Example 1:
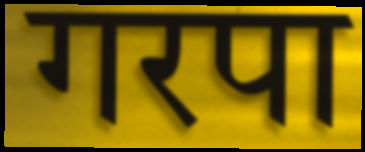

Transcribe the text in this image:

गरपा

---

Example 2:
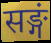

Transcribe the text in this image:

सङ्गं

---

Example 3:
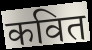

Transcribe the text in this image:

कवित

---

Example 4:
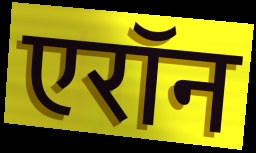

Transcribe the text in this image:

एरॉन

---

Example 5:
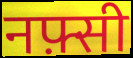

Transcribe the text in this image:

नफ़्सी